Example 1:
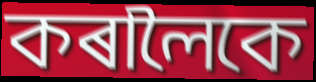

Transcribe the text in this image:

কৰালৈকে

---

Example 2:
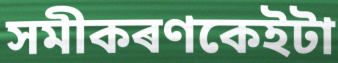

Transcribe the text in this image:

সমীকৰণকেইটা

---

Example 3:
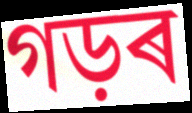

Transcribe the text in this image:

গড়ৰ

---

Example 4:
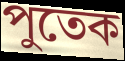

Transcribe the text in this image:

পুতেক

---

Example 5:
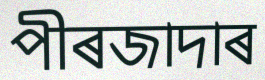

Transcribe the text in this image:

পীৰজাদাৰ